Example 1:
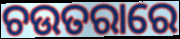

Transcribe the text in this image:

ଚଉତରାରେ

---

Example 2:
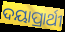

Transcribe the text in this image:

ଦୟାପ୍ରାର୍ଥୀ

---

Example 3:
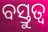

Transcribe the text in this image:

ବସ୍ତୁତ୍ବ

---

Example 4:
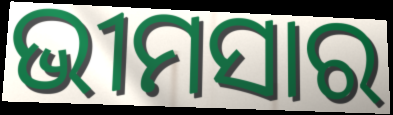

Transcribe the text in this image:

ଭୀମସାର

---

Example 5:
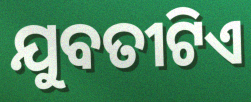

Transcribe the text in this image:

ଯୁବତୀଟିଏ